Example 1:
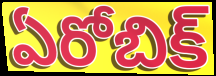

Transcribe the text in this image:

ఏరోబిక్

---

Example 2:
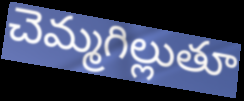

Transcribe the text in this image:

చెమ్మగిల్లుతూ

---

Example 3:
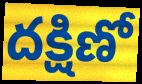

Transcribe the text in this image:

దక్షిణో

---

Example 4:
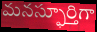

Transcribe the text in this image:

మనస్ఫూర్తిగా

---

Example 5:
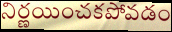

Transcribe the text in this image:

నిర్ణయించకపోవడం